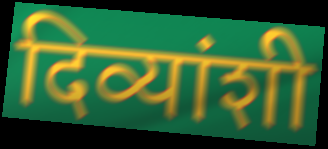
दिव्यांशी